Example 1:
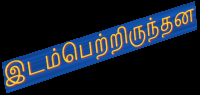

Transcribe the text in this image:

இடம்பெற்றிருந்தன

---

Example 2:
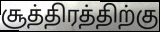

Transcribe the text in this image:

சூத்திரத்திற்கு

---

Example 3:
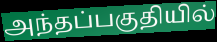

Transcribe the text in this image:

அந்தப்பகுதியில்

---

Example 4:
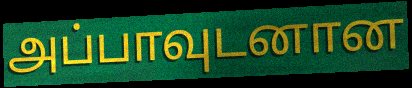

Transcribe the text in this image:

அப்பாவுடனான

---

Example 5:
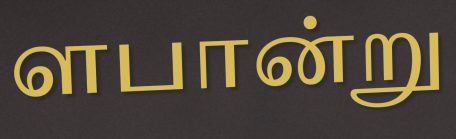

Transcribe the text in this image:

ளபான்று